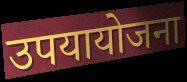
उपयायोजना